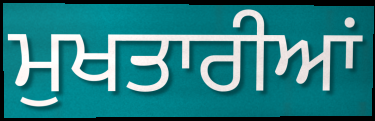
ਮੁਖਤਾਰੀਆਂ